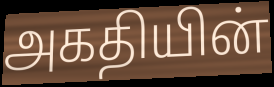
அகதியின்